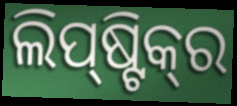
ଲିପ୍‌ଷ୍ଟିକ୍‌ର